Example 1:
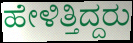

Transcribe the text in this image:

ಹೇಳಿತ್ತಿದ್ದರು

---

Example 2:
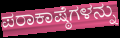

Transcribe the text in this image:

ಪರಾಕಾಷ್ಠೆಗಳನ್ನು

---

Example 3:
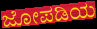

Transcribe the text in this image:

ಜೋಪಡಿಯ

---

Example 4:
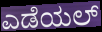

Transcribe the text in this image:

ಎಡೆಯಲ್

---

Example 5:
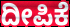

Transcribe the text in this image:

ದೀಪಿಕೆ